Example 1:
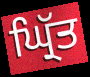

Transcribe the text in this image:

ਘ੍ਰਿੱਤ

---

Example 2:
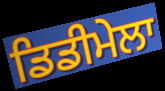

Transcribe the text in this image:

ਡਿਡੀਮੇਲਾ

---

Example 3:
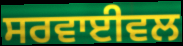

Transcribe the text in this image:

ਸਰਵਾਈਵਲ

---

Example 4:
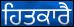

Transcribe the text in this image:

ਹਿਤਕਾਰੈ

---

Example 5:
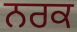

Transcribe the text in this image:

ਨਰਕ